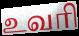
உவரி